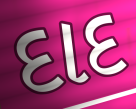
દાદ